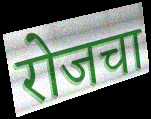
रोजचा